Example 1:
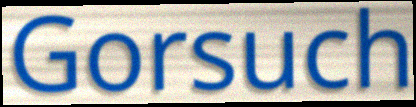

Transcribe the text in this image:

Gorsuch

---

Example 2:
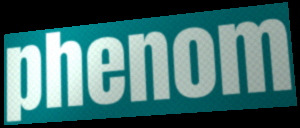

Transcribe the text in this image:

phenom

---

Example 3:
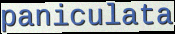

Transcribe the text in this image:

paniculata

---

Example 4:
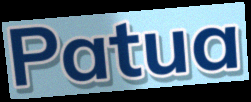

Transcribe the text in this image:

Patua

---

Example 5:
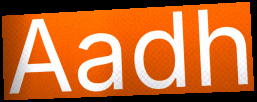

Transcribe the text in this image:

Aadh